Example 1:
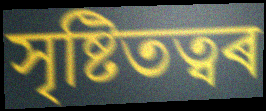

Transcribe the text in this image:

সৃষ্টিতত্বৰ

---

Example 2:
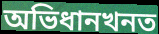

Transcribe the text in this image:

অভিধানখনত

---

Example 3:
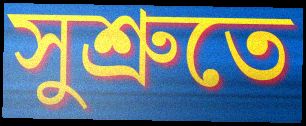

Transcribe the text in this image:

সুশ্ৰুতে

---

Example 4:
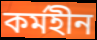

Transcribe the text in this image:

কৰ্মহীন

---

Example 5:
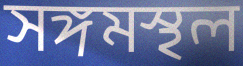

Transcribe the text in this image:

সঙ্গমস্থল